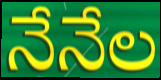
నేనేల